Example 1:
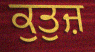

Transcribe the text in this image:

ਕੁਤੁਜ਼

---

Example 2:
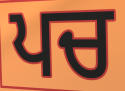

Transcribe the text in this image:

ਪਚ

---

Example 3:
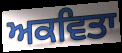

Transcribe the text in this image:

ਅਕਵਿਤਾ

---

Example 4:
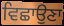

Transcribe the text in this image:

ਵਿਛਾਉਣਾ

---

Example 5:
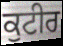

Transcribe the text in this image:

ਕੁਟੀਰ